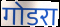
गोडरा